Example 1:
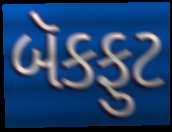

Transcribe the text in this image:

બૅકફુટ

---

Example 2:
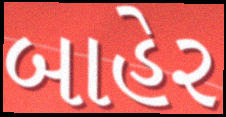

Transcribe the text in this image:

બાહેર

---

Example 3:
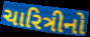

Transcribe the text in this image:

ચારિત્રીનો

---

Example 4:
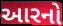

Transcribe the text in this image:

આરનો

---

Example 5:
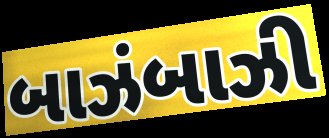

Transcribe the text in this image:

બાઝંબાઝી